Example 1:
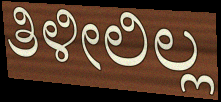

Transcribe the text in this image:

ತಿಳೀಲಿಲ್ಲ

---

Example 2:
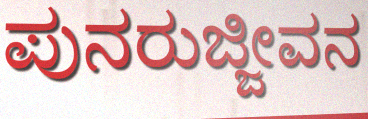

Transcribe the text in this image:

ಪುನರುಜ್ಜೀವನ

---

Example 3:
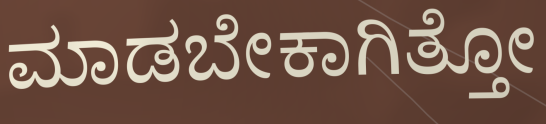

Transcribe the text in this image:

ಮಾಡಬೇಕಾಗಿತ್ತೋ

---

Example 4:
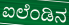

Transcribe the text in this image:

ಐಲೆಂಡಿನ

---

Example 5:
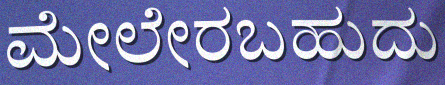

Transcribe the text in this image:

ಮೇಲೇರಬಹುದು